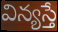
విన్యస్తే